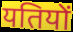
यतियों